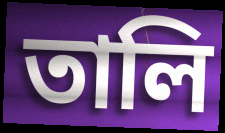
তালি